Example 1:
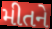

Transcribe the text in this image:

મીતને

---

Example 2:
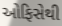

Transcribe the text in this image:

ઓફિસેથી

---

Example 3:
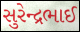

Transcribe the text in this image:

સુરેન્દ્રભાઈ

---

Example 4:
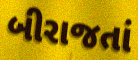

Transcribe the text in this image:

બીરાજતાં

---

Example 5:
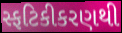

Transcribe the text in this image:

સ્ફટિકીકરણથી